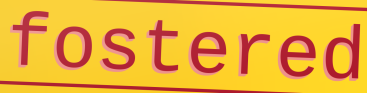
fostered